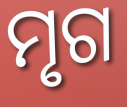
ମୃଗ